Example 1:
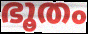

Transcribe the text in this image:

ഭൂതം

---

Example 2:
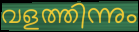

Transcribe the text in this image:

വളത്തിന്നും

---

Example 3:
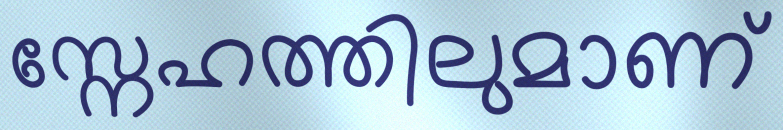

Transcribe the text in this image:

സ്നേഹത്തിലുമാണ്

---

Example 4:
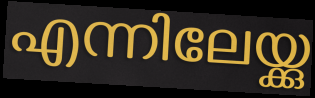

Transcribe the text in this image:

എന്നിലേയ്ക്കു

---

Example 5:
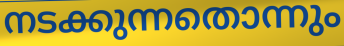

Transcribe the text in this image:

നടക്കുന്നതൊന്നും